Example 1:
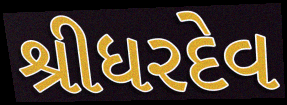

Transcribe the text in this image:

શ્રીધરદેવ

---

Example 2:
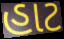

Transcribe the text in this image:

હાટ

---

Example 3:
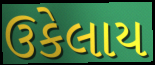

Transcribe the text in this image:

ઉકેલાય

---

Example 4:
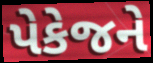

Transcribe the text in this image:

પેકેજને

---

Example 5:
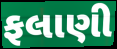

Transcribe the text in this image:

ફલાણી